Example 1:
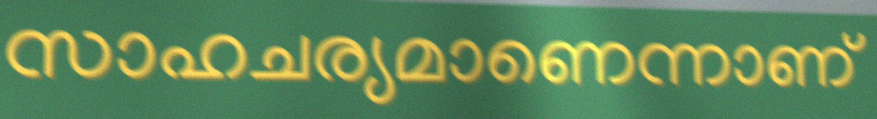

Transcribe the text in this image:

സാഹചര്യമാണെന്നാണ്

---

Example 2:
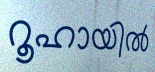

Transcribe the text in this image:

റൂഹായിൽ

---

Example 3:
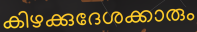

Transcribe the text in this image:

കിഴക്കുദേശക്കാരും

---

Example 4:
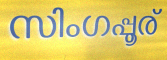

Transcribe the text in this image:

സിംഗപ്പൂര്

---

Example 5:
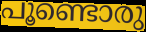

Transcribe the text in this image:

പൂണ്ടൊരു